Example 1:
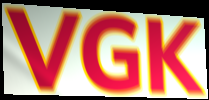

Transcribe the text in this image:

VGK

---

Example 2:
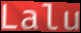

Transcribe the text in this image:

Lalu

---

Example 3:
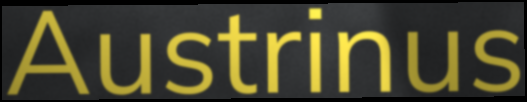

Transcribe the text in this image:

Austrinus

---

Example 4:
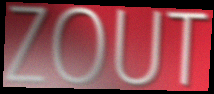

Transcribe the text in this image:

ZOUT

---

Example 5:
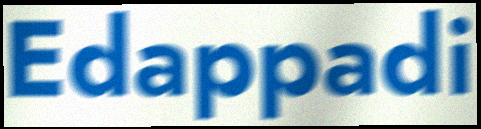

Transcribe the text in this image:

Edappadi